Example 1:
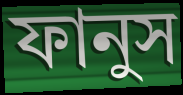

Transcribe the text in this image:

ফানুস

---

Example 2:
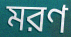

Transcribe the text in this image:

মরণ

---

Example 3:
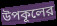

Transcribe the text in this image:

উপকূলের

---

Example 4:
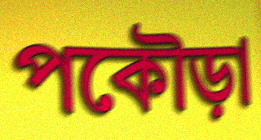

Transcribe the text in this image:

পকৌড়া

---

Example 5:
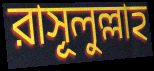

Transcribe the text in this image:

রাসূলুল্লাহ